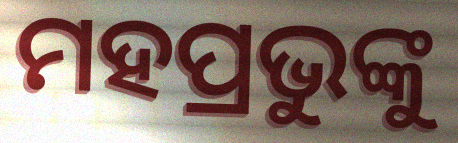
ମହପ୍ରଭୁଙ୍କୁ